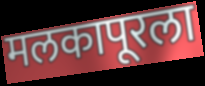
मलकापूरला